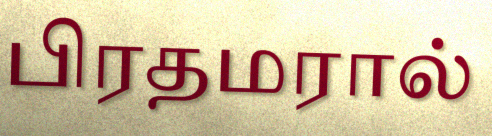
பிரதமரால்